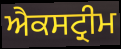
ਐਕਸਟ੍ਰੀਮ